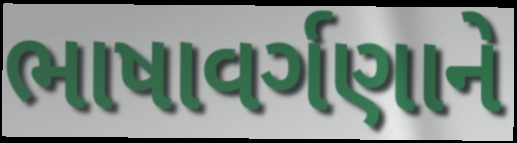
ભાષાવર્ગણાને